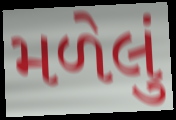
મળેલું